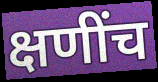
क्षणींच